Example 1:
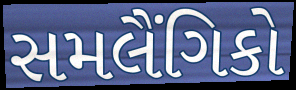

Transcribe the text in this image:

સમલૈંગિકો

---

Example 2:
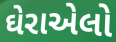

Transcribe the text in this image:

ઘેરાએલો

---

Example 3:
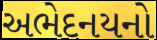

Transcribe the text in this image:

અભેદનયનો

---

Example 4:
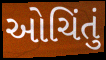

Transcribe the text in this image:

ઓચિંતું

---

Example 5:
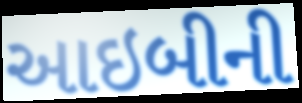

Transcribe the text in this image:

આઇબીની